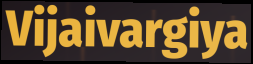
Vijaivargiya